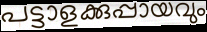
പട്ടാളക്കുപ്പായവും